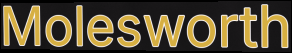
Molesworth